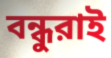
বন্ধুরাই